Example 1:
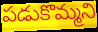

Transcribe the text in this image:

పడుకొమ్మని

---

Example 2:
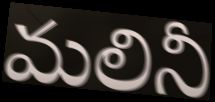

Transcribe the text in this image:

మలినీ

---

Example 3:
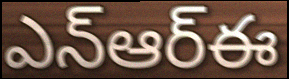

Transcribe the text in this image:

ఎన్ఆర్ఈ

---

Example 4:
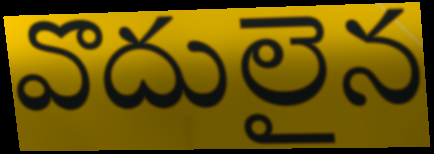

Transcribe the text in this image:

వొదులైన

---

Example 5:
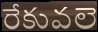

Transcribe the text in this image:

రేకువలె